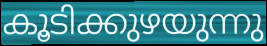
കൂടിക്കുഴയുന്നു